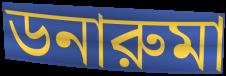
ডনারুমা